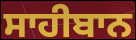
ਸਾਹੀਬਾਨ